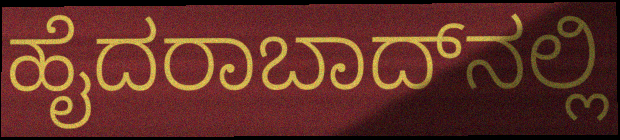
ಹೈದರಾಬಾದ್‌ನಲ್ಲಿ